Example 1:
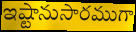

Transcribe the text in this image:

ఇష్టానుసారముగా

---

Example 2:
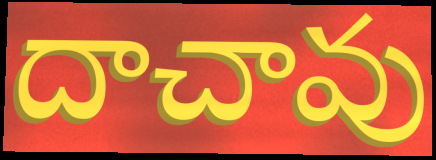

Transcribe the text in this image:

దాచావు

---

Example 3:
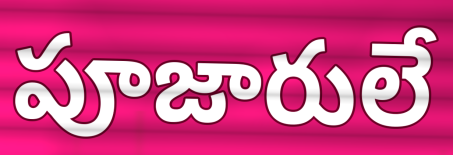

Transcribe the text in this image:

పూజారులే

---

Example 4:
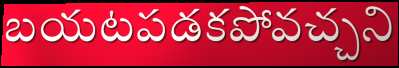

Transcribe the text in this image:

బయటపడకపోవచ్చని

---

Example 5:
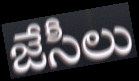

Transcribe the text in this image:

జేసీలు